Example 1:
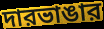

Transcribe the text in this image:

দারভাঙার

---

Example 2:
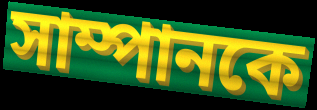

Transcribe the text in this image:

সাম্পানকে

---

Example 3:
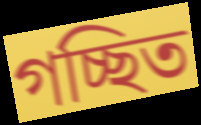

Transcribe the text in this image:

গচ্ছিত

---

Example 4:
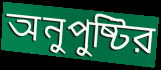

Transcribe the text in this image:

অনুপুষ্টির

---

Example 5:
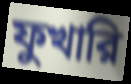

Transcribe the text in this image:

ফুখারি